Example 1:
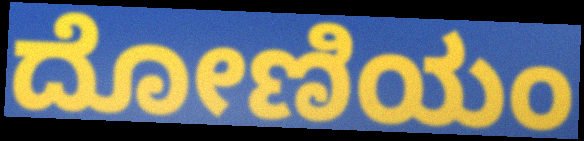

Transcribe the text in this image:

ದೋಣಿಯಂ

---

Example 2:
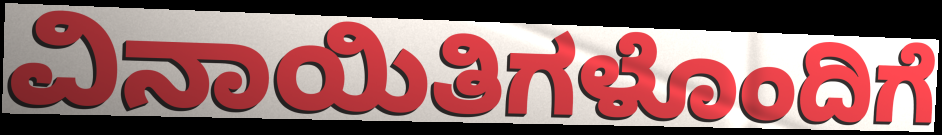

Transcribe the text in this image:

ವಿನಾಯಿತಿಗಳೊಂದಿಗೆ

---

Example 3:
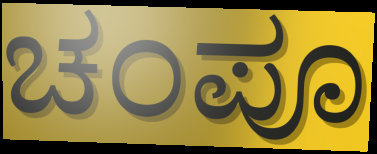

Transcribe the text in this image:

ಚಂಪೂ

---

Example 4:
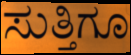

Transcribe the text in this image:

ಸುತ್ತಿಗೂ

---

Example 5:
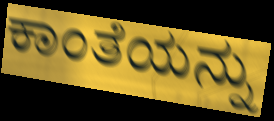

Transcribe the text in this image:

ಕಾಂತೆಯನ್ನು